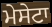
ਮੇਸੇਟਾ